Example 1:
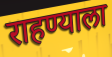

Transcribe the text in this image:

राहण्याला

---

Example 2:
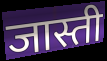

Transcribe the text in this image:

जास्ती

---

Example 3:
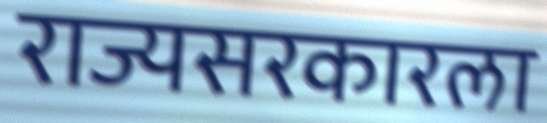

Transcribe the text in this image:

राज्यसरकारला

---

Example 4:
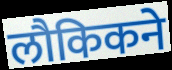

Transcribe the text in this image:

लौकिकने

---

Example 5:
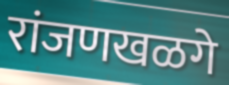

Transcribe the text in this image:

रांजणखळगे